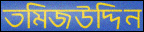
তমিজউদ্দিন